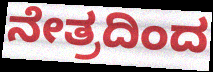
ನೇತ್ರದಿಂದ